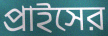
প্রাইসের